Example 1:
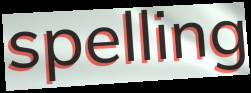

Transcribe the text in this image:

spelling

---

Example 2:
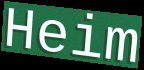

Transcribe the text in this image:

Heim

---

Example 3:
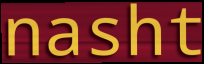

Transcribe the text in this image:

nasht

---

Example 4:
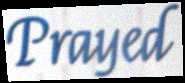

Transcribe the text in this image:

Prayed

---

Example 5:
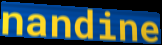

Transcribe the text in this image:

nandine